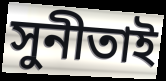
সুনীতাই